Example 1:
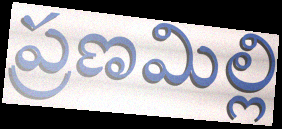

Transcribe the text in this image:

ప్రణమిల్లి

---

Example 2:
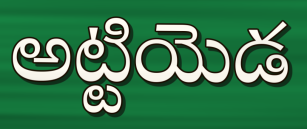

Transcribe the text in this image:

అట్టియెడ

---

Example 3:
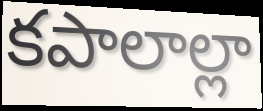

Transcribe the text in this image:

కపాలాల్లా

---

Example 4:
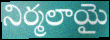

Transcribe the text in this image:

నిర్మలాయై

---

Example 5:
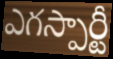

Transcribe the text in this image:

ఎగస్పార్టీ